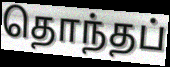
தொந்தப்